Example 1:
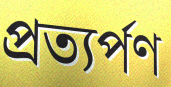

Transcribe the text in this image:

প্ৰত্যৰ্পণ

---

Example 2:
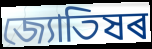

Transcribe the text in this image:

জ্যোতিষৰ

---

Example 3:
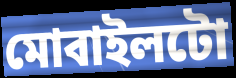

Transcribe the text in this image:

মোবাইলটো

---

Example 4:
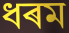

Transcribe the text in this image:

ধৰম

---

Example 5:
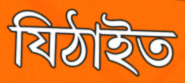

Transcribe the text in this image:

যিঠাইত